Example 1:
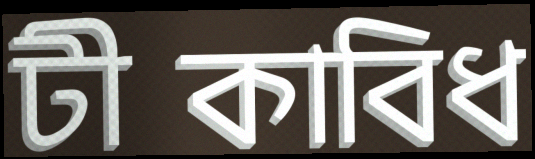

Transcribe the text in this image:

টীকাবিধ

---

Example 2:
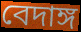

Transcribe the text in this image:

বেদাঙ্গ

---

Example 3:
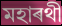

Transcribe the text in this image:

মহাৰথী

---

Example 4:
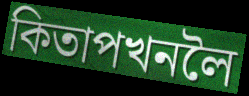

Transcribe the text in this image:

কিতাপখনলৈ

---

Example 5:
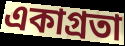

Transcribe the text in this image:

একাগ্ৰতা